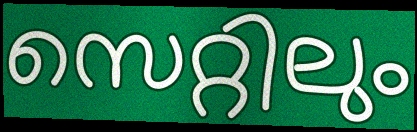
സെറ്റിലും